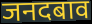
जनदबाव